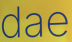
dae